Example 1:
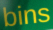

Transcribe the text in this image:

bins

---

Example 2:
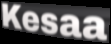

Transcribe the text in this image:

Kesaa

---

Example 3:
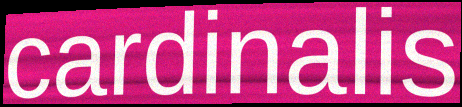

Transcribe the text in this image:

cardinalis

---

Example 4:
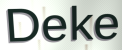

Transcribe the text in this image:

Deke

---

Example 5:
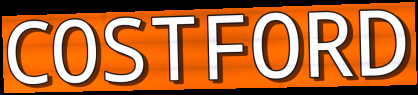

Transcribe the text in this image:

COSTFORD